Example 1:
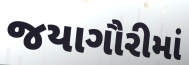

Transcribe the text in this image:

જયાગૌરીમાં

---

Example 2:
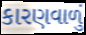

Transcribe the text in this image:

કારણવાળું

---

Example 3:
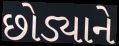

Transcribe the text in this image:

છોડ્યાને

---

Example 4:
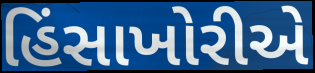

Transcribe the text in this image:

હિંસાખોરીએ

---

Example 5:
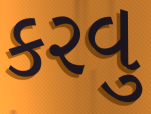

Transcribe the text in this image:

કરવુ